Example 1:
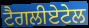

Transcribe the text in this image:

ਟੈਗਲੀਏਟੇਲ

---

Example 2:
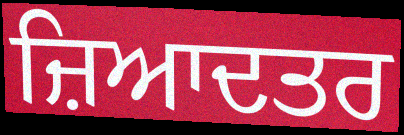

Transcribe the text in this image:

ਜ਼ਿਆਦਤਰ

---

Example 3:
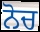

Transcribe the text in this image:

ਨੋਚ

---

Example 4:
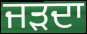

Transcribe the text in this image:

ਜੜਦਾ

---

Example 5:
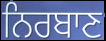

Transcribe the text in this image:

ਨਿਰਬਾਣ